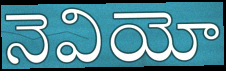
నెవియో